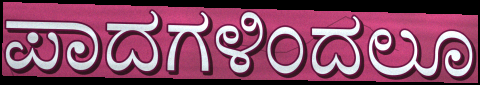
ಪಾದಗಳಿಂದಲೂ